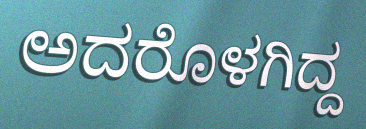
ಅದರೊಳಗಿದ್ದ